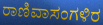
ರಾಣಿವಾಸಂಗಳಿರ